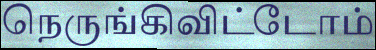
நெருங்கிவிட்டோம்